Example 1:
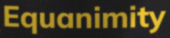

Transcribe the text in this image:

Equanimity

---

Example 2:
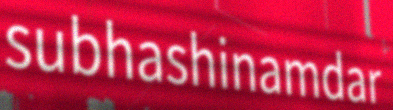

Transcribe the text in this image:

subhashinamdar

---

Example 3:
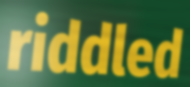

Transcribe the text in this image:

riddled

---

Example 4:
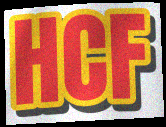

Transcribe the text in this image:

HCF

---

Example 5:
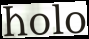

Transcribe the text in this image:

holo